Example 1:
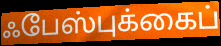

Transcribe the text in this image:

ஃபேஸ்புக்கைப்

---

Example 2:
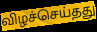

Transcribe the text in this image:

விழச்செய்தது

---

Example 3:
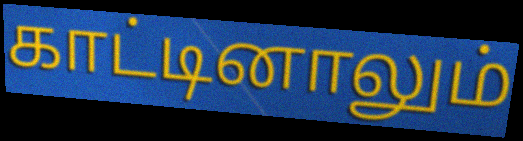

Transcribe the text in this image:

காட்டினாலும்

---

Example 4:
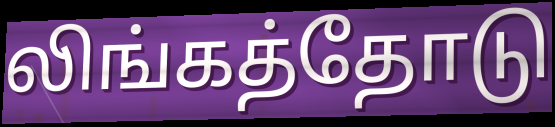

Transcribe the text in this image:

லிங்கத்தோடு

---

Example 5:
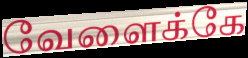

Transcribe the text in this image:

வேளைக்கே